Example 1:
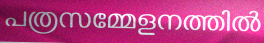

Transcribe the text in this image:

പത്രസമ്മേളനത്തിൽ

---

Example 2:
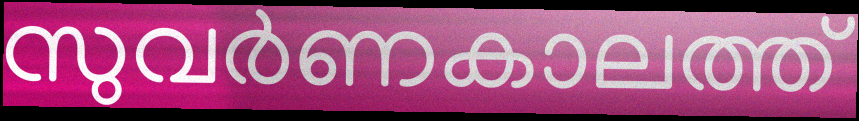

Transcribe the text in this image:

സുവർണകാലത്ത്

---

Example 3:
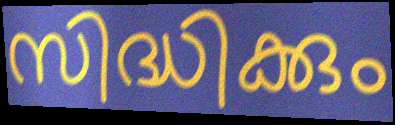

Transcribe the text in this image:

സിദ്ധിക്കും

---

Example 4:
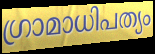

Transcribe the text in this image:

ഗ്രാമാധിപത്യം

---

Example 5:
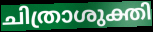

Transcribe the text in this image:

ചിത്രാശുക്തി